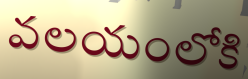
వలయంలోకి